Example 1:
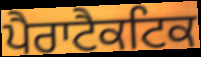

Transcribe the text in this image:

ਪੈਰਾਟੈਕਟਿਕ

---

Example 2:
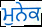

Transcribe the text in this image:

ਮੁਨੇਕ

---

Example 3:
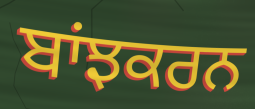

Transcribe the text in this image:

ਬਾਂਝਕਰਨ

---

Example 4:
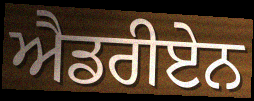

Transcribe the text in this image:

ਐਡਰੀਏਨ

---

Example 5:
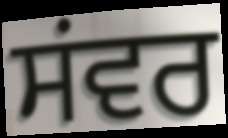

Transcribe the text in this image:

ਸਂਵਰ